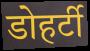
डोहर्टी